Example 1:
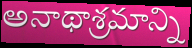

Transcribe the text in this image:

అనాథాశ్రమాన్ని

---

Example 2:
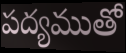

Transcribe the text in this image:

పద్యముతో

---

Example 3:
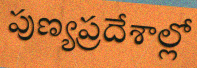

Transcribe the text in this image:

పుణ్యప్రదేశాల్లో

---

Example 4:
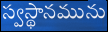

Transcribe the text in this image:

స్వస్థానమును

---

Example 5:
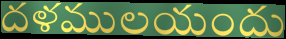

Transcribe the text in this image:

దళములయందు